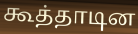
கூத்தாடின